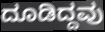
ದೂಡಿದ್ದವು